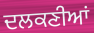
ਦਲਕਣੀਆਂ